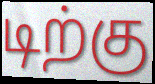
டிற்கு